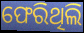
ଫେରିଥିଲି